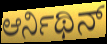
ಆರ್ನಿಥಿನ್